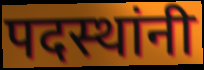
पदस्थांनी